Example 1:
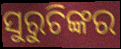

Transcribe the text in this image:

ସୁରୁଚିଙ୍କର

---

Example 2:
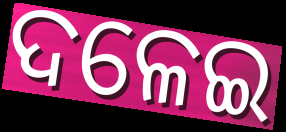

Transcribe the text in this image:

ଦଳେଇ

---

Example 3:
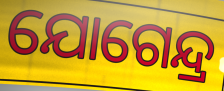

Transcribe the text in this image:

ଯୋଗେନ୍ଦ୍ର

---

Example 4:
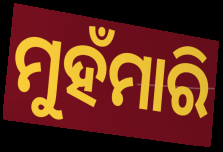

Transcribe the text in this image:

ମୁହଁମାରି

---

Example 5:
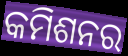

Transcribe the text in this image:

କମିଶନର